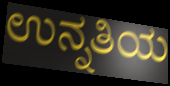
ಉನ್ನತಿಯ